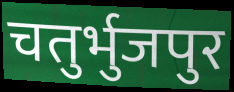
चतुर्भुजपुर